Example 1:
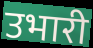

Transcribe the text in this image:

उभारी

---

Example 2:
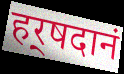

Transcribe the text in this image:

हर्षदानं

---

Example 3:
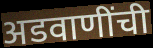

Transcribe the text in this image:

अडवाणींची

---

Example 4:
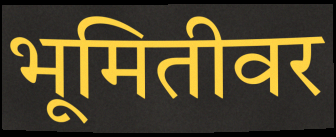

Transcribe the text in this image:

भूमितीवर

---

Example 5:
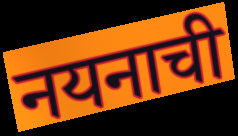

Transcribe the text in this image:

नयनाची